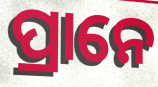
ପ୍ରାନେ